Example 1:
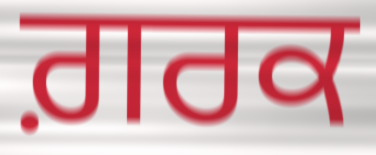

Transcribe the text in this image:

ਗ਼ਰਕ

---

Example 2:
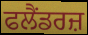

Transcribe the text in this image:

ਫਲੈਂਡਰਜ਼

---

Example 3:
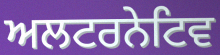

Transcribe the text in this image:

ਅਲਟਰਨੇਟਿਵ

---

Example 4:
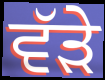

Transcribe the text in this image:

ਵੱਡ਼ੇ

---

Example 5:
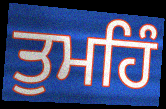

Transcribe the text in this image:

ਤੁਮਹਿੰ